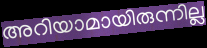
അറിയാമായിരുന്നില്ല